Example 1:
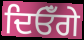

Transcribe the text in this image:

ਦਿਓਁਗੇ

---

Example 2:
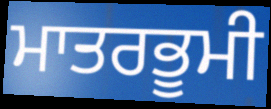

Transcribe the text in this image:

ਮਾਤਰਭੂਮੀ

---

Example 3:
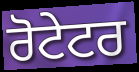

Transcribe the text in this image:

ਰੋਟੇਟਰ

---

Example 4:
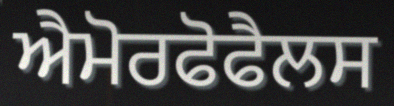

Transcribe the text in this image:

ਐਮੋਰਫੋਫੈਲਸ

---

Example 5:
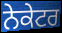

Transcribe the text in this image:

ਨੇਕੇਟਰ